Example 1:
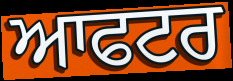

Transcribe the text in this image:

ਆਫਟਰ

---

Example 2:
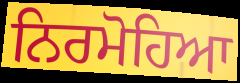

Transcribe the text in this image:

ਨਿਰਮੋਹਿਆ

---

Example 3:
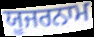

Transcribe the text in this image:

ਯੂਜਰਨਾਮ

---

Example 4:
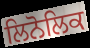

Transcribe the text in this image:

ਲਿਨੋਲਿਕ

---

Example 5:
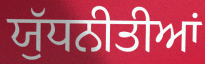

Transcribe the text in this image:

ਯੁੱਧਨੀਤੀਆਂ